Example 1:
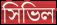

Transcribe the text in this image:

সিভিল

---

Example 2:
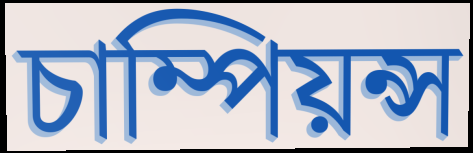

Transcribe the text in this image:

চাম্পিয়ন্স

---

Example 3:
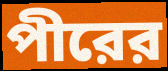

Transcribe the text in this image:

পীরের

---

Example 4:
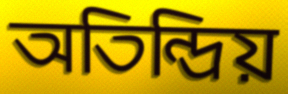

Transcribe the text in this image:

অতিন্দ্রিয়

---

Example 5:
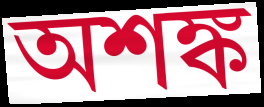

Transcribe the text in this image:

অশঙ্ক